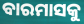
ବାରମାସକୁ